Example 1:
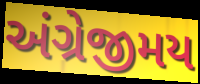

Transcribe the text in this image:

અંગ્રેજીમય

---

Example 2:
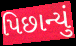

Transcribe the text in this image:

પિછાન્યું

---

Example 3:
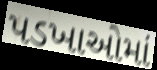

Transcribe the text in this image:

પડખાઓમાં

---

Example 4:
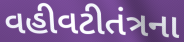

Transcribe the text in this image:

વહીવટીતંત્રના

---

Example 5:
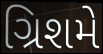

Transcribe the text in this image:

ગ્રિશમે